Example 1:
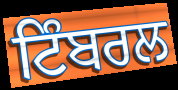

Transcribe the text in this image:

ਟਿੰਬਰਲ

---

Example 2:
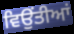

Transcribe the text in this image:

ਵਿਉਂਤੀਆਂ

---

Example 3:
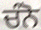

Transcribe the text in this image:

ਚੰਨੋ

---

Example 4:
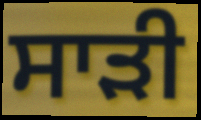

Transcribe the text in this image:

ਸਾੜੀ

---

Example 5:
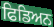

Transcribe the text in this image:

ਫਿਡਿਅਨ